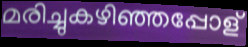
മരിച്ചുകഴിഞ്ഞപ്പോള്